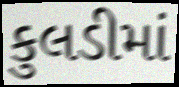
કુલડીમાં